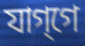
যাগ্‌গে